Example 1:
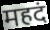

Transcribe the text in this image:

महदं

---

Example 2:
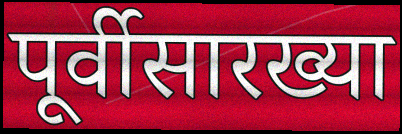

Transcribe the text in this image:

पूर्वीसारख्या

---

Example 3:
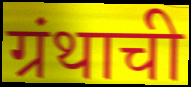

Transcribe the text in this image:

ग्रंथाची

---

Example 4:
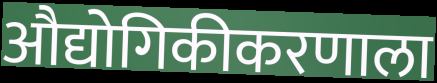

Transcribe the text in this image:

औद्योगिकीकरणाला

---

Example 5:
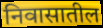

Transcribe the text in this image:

निवासातील